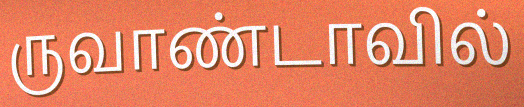
ருவாண்டாவில்